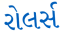
રોલર્સ